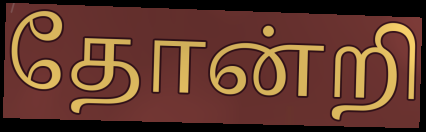
தோன்றி